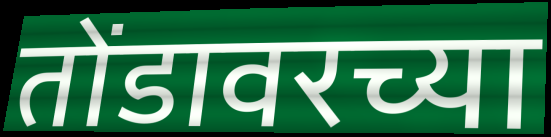
तोंडावरच्या